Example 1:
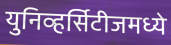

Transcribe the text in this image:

युनिव्हर्सिटीजमध्ये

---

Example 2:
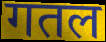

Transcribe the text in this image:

गतल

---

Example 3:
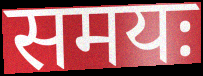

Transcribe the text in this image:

समयः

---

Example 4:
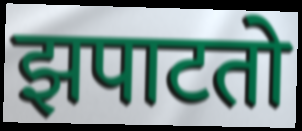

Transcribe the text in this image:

झपाटतो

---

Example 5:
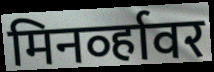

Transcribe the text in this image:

मिनर्व्हावर